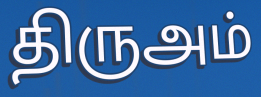
திருஅம்